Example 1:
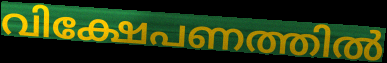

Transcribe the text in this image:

വിക്ഷേപണത്തിൽ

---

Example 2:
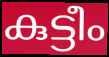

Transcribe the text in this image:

കുട്ടീം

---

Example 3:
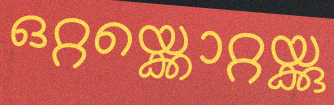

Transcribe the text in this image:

ഒറ്റയ്ക്കൊറ്റയ്ക്കു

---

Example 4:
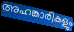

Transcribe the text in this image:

അഹങ്കാരികളും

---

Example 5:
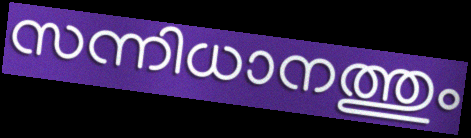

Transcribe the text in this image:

സന്നിധാനത്തും